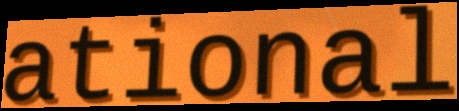
ational